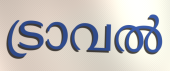
ട്രാവൽ